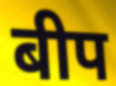
बीप